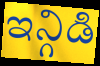
ఇన్గిడి